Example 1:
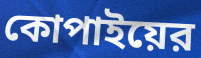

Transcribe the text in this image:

কোপাইয়ের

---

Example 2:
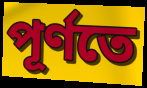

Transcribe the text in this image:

পূর্ণতে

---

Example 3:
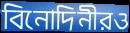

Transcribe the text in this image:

বিনোদিনীরও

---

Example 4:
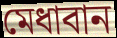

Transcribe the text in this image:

মেধাবান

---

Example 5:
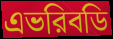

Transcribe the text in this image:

এভরিবডি